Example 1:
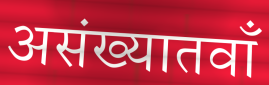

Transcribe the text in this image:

असंख्यातवाँ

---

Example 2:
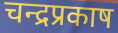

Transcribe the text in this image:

चन्द्रप्रकाष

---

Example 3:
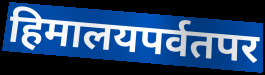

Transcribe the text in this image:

हिमालयपर्वतपर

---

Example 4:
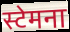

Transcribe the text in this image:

स्टेमना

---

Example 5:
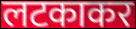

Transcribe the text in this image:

लटकाकर